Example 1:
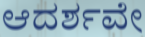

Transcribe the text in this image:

ಆದರ್ಶವೇ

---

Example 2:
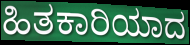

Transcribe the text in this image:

ಹಿತಕಾರಿಯಾದ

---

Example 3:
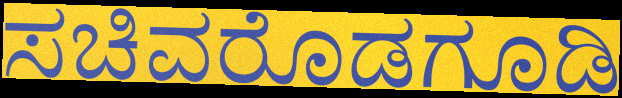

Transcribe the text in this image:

ಸಚಿವರೊಡಗೂಡಿ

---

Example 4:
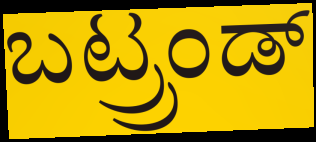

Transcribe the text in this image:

ಬಟ್ರ್ರಂಡ್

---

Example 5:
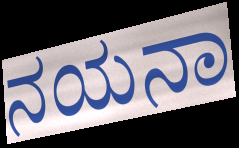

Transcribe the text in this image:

ನಯನಾ